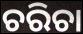
ଚରିଚା